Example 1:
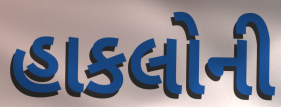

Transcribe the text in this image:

હાકલોની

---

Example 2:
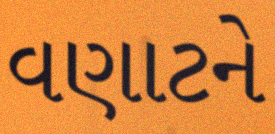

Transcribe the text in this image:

વણાટને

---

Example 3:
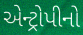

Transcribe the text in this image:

એન્ટ્રોપીનો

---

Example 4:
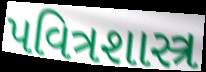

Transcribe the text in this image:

પવિત્રશાસ્ત્ર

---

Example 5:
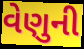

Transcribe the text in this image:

વેણુની